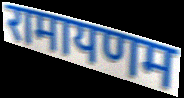
रामायणम